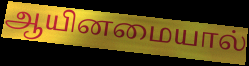
ஆயினமையால்